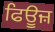
ਫਿਊਜ਼